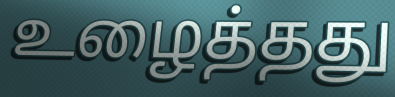
உழைத்தது